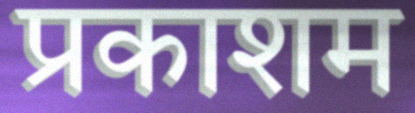
प्रकाशम